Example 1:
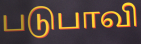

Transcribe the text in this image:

படுபாவி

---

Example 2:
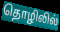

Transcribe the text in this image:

தொழிலில்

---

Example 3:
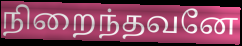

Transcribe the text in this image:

நிறைந்தவனே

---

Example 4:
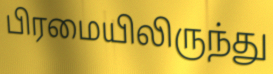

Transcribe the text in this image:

பிரமையிலிருந்து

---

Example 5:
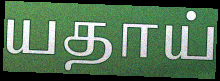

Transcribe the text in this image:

யதாய்